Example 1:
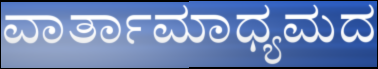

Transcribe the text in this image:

ವಾರ್ತಾಮಾಧ್ಯಮದ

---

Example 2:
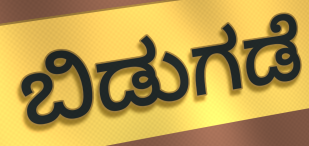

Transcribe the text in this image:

ಬಿಡುಗಡೆ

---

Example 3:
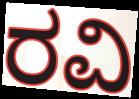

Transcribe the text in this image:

ರವಿ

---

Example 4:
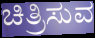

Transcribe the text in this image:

ಚಿತ್ರಿಸುವ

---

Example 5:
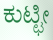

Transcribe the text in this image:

ಕುಟ್ಟೀ